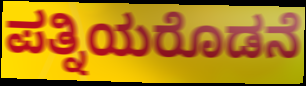
ಪತ್ನಿಯರೊಡನೆ